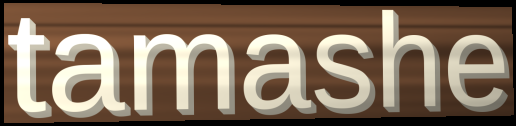
tamashe